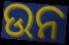
ଉନ